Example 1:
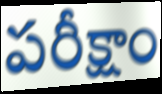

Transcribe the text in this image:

పరీక్షాం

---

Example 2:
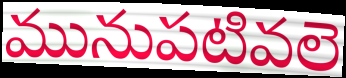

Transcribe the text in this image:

మునుపటివలె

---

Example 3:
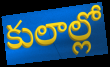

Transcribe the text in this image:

కులాల్లో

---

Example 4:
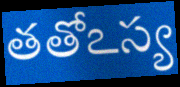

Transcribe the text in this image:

తతోఽస్య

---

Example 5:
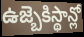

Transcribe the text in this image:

ఉజ్బెకిస్థాన్లో